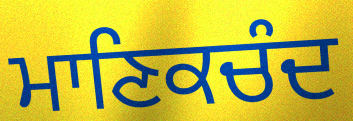
ਮਾਣਿਕਚੰਦ